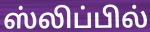
ஸ்லிப்பில்